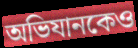
অভিযানকেও